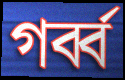
গর্ব্ব